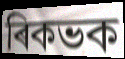
ৰিকভক